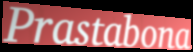
Prastabona